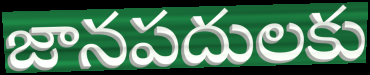
జానపదులకు